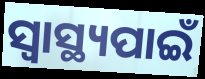
ସ୍ବାସ୍ଥ୍ୟପାଇଁ